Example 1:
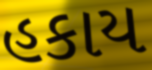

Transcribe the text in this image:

હકાય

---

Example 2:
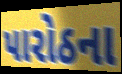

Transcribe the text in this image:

પારોઠના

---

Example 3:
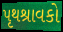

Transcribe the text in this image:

પૃથશ્રાવકો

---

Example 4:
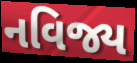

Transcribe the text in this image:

નવિજ્ય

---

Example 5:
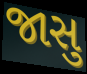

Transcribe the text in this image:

જાસુ